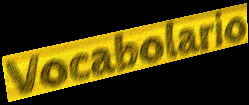
Vocabolario